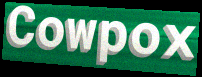
Cowpox